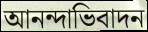
আনন্দাভিবাদন